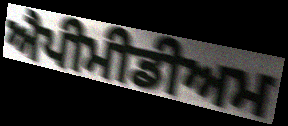
ਐਪੀਮੀਡੀਅਮ